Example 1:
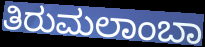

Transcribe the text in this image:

ತಿರುಮಲಾಂಬಾ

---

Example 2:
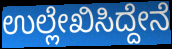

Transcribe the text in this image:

ಉಲ್ಲೇಖಿಸಿದ್ದೇನೆ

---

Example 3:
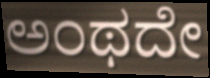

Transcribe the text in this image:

ಅಂಥದೇ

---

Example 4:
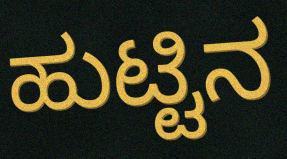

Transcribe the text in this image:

ಹುಟ್ಟಿನ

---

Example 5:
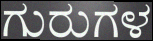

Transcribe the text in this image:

ಗುರುಗಳ